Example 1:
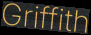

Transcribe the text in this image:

Griffith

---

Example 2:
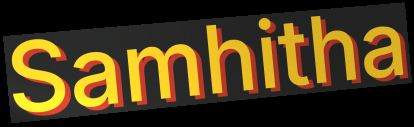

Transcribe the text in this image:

Samhitha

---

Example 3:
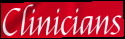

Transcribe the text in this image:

Clinicians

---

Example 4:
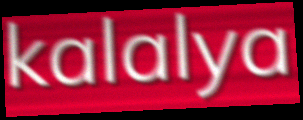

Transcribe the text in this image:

kalalya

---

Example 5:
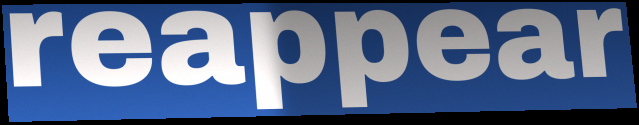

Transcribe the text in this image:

reappear